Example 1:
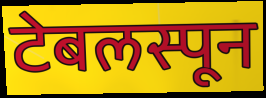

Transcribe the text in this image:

टेबलस्पून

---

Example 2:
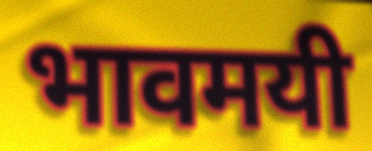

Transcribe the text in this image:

भावमयी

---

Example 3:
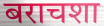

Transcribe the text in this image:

बराचशा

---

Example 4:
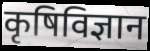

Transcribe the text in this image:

कृषिविज्ञान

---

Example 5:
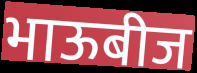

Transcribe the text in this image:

भाऊबीज